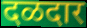
दळदार